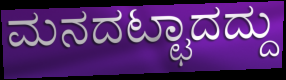
ಮನದಟ್ಟಾದದ್ದು